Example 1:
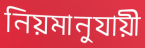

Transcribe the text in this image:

নিয়মানুযায়ী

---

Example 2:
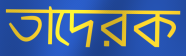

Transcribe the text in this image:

তাদেরক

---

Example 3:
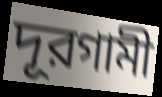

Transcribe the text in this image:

দূরগামী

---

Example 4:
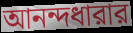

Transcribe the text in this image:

আনন্দধারার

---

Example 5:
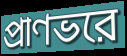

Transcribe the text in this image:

প্রাণভরে